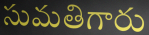
సుమతిగారు